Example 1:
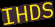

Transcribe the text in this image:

IHDS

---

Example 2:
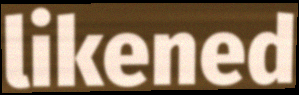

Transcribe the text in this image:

likened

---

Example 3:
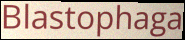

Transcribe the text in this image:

Blastophaga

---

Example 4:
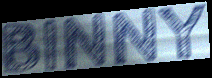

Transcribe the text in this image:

BINNY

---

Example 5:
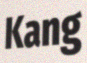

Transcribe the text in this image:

Kang